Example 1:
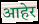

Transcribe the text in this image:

आहेर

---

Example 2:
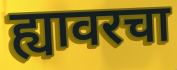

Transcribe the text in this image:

ह्यावरचा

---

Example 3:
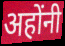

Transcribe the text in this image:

अहोंनी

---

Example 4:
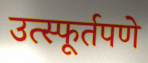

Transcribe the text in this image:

उत्स्फूर्तपणे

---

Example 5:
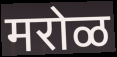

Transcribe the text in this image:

मरोळ